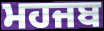
ਮਹਜਬ